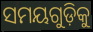
ସମୟଗୁଡ଼ିକୁ